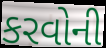
કરવોની